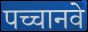
पच्चानवे